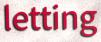
letting